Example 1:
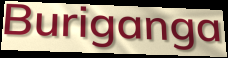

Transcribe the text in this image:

Buriganga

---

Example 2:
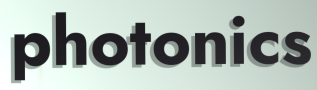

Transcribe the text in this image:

photonics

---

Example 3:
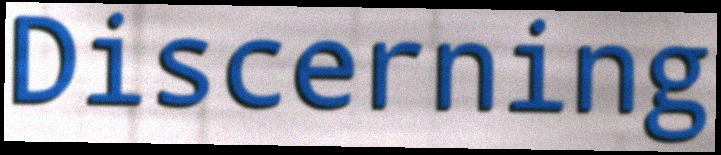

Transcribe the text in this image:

Discerning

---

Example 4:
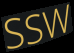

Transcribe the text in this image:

SSW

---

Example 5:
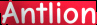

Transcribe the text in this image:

Antlion